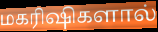
மகரிஷிகளால்